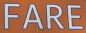
FARE